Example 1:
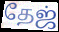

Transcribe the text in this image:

தேஜ்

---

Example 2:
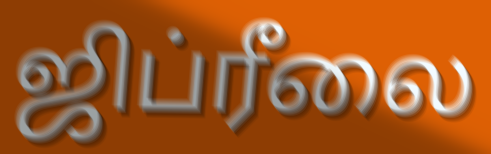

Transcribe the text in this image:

ஜிப்ரீலை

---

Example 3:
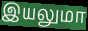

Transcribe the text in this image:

இயலுமா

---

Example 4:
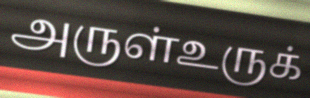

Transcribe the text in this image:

அருள்உருக்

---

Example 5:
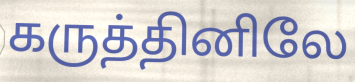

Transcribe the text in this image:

கருத்தினிலே